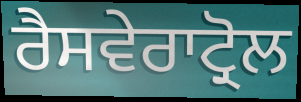
ਰੈਸਵੇਰਾਟ੍ਰੋਲ